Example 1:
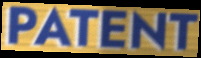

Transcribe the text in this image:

PATENT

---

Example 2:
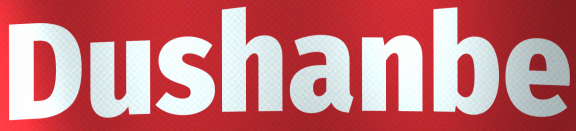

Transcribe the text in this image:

Dushanbe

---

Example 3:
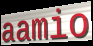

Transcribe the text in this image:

aamio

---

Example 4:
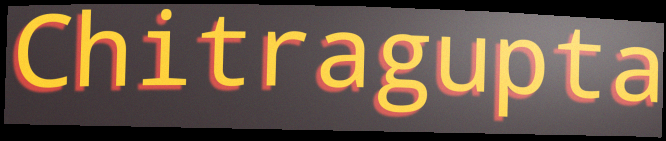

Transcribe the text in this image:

Chitragupta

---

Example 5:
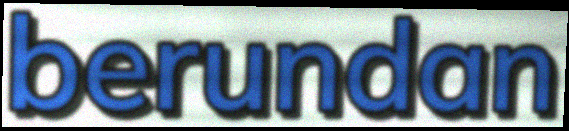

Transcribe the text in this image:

berundan